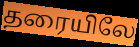
தரையிலே